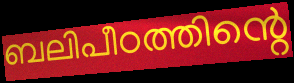
ബലിപീഠത്തിന്റെ